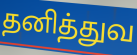
தனித்துவ